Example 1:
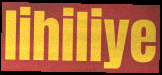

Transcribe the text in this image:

lihiliye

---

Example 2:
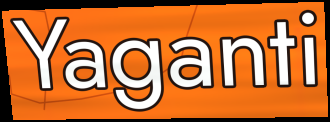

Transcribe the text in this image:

Yaganti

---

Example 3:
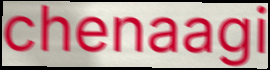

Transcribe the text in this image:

chenaagi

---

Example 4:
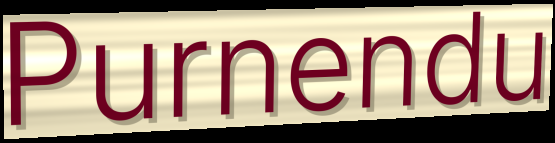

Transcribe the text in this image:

Purnendu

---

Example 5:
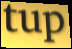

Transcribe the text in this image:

tup